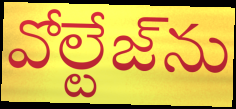
వోల్టేజ్‌ను